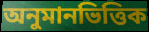
অনুমানভিত্তিক